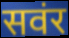
सवंर